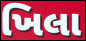
ખિલા